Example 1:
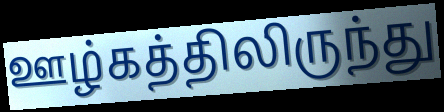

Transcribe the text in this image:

ஊழ்கத்திலிருந்து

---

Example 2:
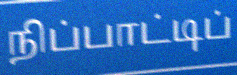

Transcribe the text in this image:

நிப்பாட்டிப்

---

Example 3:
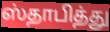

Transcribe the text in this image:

ஸ்தாபித்து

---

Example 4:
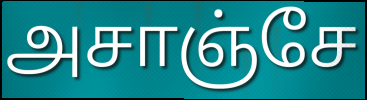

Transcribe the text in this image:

அசாஞ்சே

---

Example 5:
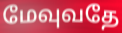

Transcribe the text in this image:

மேவுவதே